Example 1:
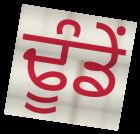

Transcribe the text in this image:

ਢੂੰਡੇਂ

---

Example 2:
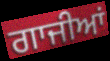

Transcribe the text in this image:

ਗਾਜੀਆਂ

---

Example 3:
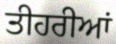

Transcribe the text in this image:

ਤੀਹਰੀਆਂ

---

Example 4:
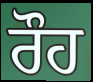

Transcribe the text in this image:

ਰੌਹ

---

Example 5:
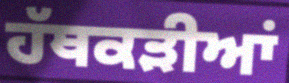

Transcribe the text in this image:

ਹੱਥਕੜੀਆਂ